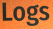
Logs